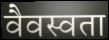
वैवस्वता